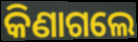
କିଣାଗଲେ